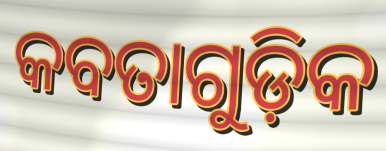
କବତାଗୁଡ଼ିକ